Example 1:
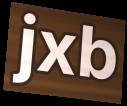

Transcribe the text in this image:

jxb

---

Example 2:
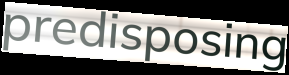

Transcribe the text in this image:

predisposing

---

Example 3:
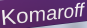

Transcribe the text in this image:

Komaroff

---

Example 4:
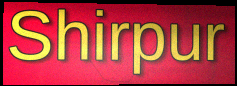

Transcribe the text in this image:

Shirpur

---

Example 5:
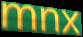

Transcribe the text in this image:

mnx